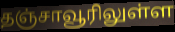
தஞ்சாவூரிலுள்ள